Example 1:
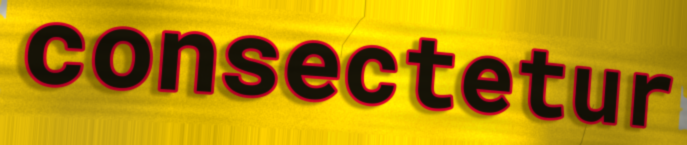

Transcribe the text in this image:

consectetur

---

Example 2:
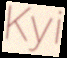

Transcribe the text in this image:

Kyi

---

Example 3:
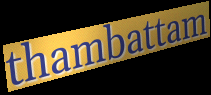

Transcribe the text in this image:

thambattam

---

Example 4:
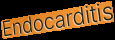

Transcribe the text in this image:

Endocarditis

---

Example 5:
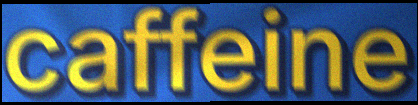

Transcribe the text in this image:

caffeine